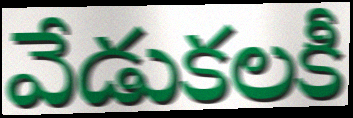
వేడుకలకీ